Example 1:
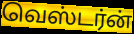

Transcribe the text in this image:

வெஸ்டர்ன்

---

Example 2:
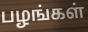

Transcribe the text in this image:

பழங்கள்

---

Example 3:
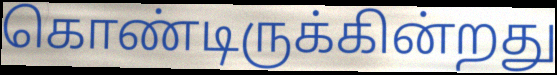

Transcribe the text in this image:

கொண்டிருக்கின்றது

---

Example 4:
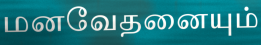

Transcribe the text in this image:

மனவேதனையும்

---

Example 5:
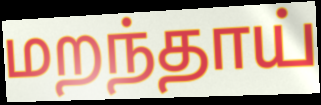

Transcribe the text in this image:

மறந்தாய்